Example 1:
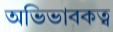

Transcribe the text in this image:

অভিভাবকত্ব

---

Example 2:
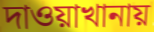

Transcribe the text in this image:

দাওয়াখানায়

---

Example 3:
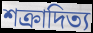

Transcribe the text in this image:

শক্রাদিত্য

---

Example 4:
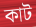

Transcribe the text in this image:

কাট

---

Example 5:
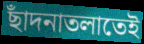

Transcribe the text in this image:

ছাঁদনাতলাতেই